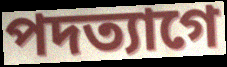
পদত্যাগে